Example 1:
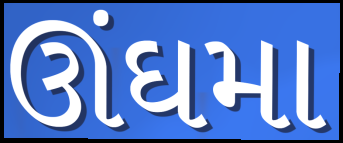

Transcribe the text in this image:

ઊંઘમા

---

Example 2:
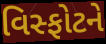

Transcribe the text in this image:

વિસ્ફોટને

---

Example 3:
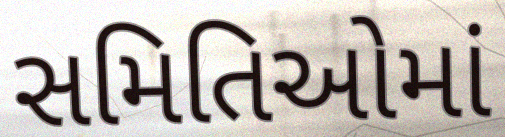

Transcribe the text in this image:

સમિતિઓમાં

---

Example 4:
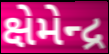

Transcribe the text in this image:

ક્ષેમેન્દ્ર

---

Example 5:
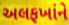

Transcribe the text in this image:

અલફખાંને